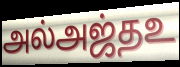
அல்அஜ்தஉ